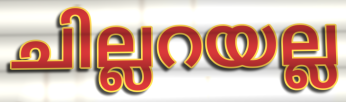
ചില്ലറയല്ല